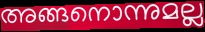
അങ്ങനൊന്നുമല്ല